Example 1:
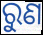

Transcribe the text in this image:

ରୁଣ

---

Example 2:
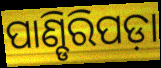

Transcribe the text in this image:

ପାଣ୍ଡିରିପଡ଼ା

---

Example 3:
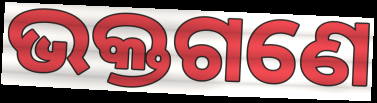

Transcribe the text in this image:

ଭକ୍ତଗଣେ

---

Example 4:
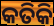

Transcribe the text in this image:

କତିକି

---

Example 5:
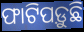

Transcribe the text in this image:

ଫାଟିପଡ଼ୁଛି